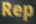
Rep